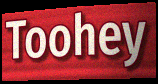
Toohey